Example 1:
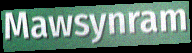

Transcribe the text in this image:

Mawsynram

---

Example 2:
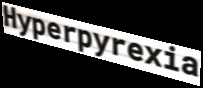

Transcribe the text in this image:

Hyperpyrexia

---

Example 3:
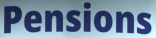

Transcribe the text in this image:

Pensions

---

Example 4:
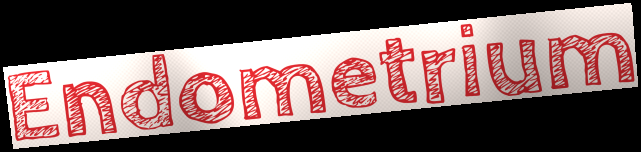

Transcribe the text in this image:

Endometrium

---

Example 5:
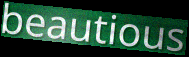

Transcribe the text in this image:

beautious